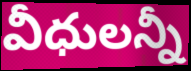
వీధులన్నీ